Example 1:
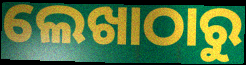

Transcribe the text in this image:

ଲେଖାଠାରୁ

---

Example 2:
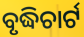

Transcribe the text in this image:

ବୃଦ୍ଧିଚାର୍ଟ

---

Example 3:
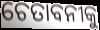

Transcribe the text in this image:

ଚେତାବନୀକୁ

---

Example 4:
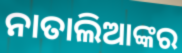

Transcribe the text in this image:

ନାତାଲିଆଙ୍କର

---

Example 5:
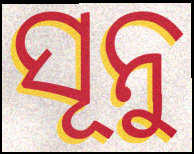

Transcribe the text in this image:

ସୂନୁ